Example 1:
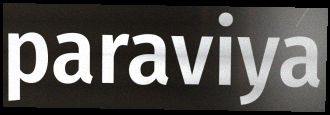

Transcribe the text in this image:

paraviya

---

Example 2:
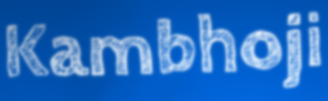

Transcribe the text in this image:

Kambhoji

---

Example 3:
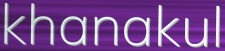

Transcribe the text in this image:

khanakul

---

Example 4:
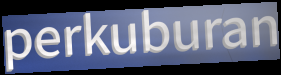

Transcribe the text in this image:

perkuburan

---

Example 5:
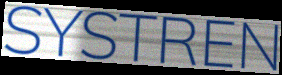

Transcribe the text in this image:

SYSTREN